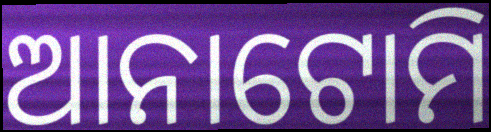
ଆନାଟୋମି